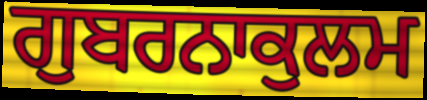
ਗੁਬਰਨਾਕੁਲਮ